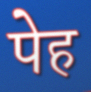
पेह